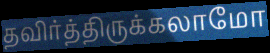
தவிர்த்திருக்கலாமோ